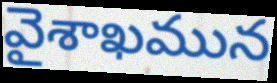
వైశాఖమున